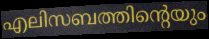
എലിസബത്തിന്റെയും